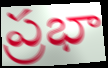
ప్రభా